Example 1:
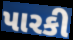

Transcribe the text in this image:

પારકી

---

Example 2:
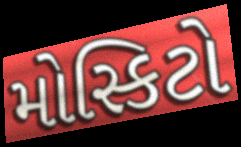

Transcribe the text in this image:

મોસ્કિટો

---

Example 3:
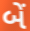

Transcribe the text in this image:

બેં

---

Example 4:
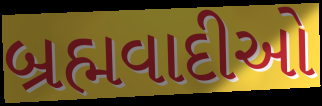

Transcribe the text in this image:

બ્રહ્મવાદીઓ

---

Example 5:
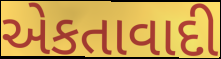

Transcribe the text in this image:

એકતાવાદી